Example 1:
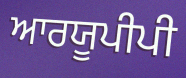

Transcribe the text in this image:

ਆਰਯੂਪੀਪੀ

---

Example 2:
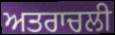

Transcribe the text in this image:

ਅਤਰਾਚਲੀ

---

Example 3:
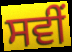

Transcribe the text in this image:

ਸਵੀਂ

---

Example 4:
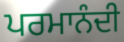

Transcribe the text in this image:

ਪਰਮਾਨੰਦੀ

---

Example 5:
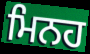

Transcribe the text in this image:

ਮਿਨਹ